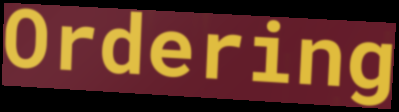
Ordering